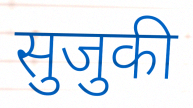
सुजुकी